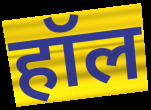
हॉल